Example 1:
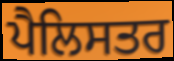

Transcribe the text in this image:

ਪੈਲਿਸਤਰ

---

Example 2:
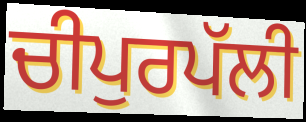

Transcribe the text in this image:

ਚੀਪੁਰਪੱਲੀ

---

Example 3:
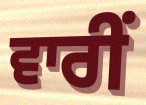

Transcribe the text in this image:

ਵਾਰੀਂ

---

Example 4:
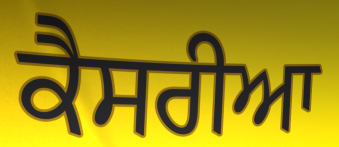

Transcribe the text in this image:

ਕੈਸਰੀਆ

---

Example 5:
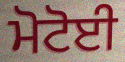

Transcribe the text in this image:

ਮੋਟੋਈ